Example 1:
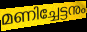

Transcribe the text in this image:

മണിച്ചേട്ടനും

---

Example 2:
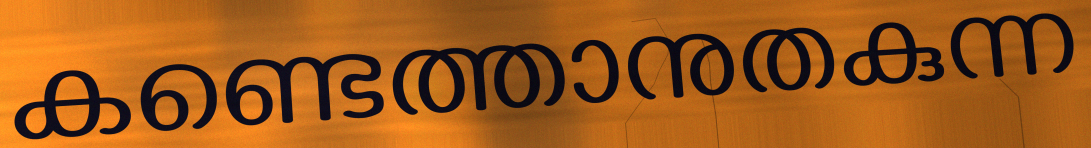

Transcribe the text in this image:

കണ്ടെത്താനുതകുന്ന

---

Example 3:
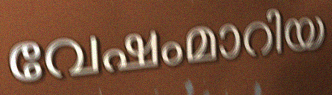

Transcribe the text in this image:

വേഷംമാറിയ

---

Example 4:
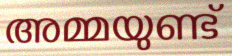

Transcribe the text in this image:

അമ്മയുണ്ട്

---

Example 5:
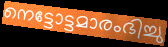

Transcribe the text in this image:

നെട്ടോട്ടമാരംഭിച്ചു